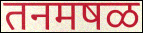
तनमषळ